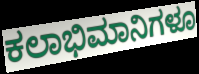
ಕಲಾಭಿಮಾನಿಗಳೂ